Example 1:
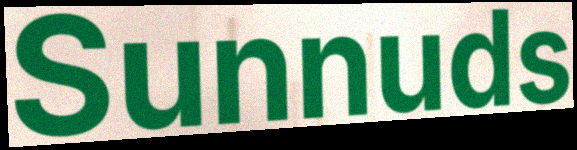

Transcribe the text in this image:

Sunnuds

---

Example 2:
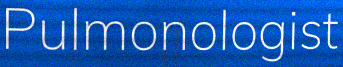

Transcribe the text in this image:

Pulmonologist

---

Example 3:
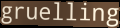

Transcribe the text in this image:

gruelling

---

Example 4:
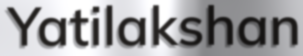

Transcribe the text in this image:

Yatilakshan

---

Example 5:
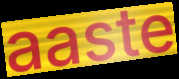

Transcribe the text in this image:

aaste